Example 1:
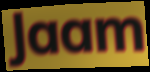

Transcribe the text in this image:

Jaam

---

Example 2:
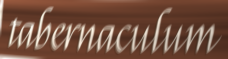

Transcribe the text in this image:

tabernaculum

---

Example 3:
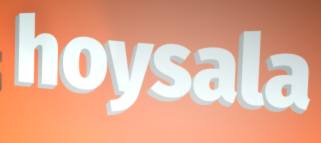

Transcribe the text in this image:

hoysala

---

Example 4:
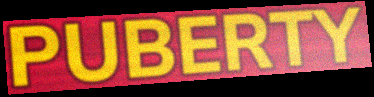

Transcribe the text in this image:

PUBERTY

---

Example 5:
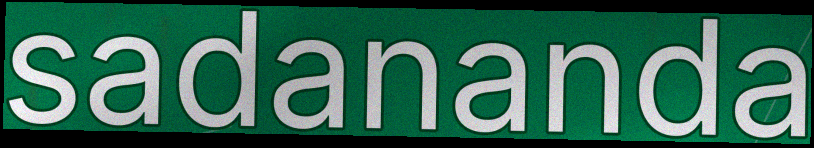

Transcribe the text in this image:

sadananda